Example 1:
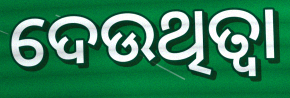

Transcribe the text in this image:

ଦେଉଥିତ୍ବା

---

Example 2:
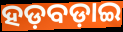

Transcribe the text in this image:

ହଡ଼ବଡ଼ାଇ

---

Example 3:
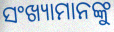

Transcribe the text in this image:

ସଂଖ୍ୟାମାନଙ୍କୁ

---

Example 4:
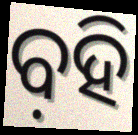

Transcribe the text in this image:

ବ଼ହି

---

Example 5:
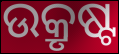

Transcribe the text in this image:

ଉକ୍ରୃଷ୍ଟ